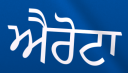
ਐਰੋਟਾ